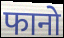
फानो